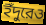
ইঁদুরেও